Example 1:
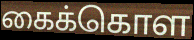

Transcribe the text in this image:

கைக்கொள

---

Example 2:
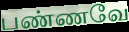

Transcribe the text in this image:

பண்ணவே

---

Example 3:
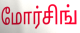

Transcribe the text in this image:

மோர்சிங்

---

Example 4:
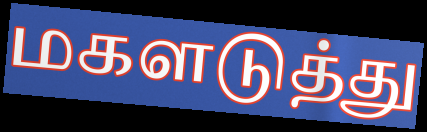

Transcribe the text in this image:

மகளடுத்து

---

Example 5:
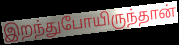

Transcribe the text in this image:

இறந்துபோயிருந்தான்